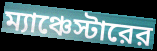
ম্যাঞ্চেস্টারের